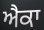
ਐਕਾ